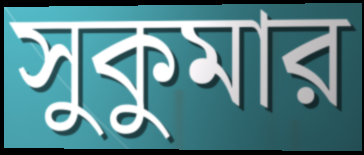
সুকুমার